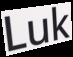
Luk